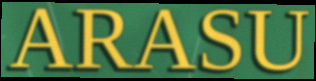
ARASU